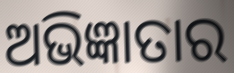
ଅଭିଜ୍ଞାତାର